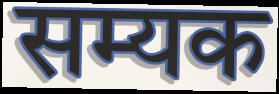
सम्‍यक